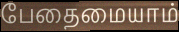
பேதைமையாம்